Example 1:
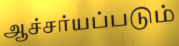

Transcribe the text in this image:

ஆச்சர்யப்படும்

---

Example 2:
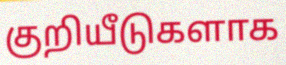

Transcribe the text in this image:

குறியீடுகளாக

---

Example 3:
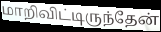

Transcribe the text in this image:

மாறிவிட்டிருந்தேன்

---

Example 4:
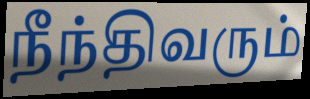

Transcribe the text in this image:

நீந்திவரும்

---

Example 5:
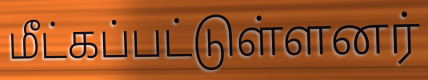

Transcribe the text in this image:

மீட்கப்பட்டுள்ளனர்